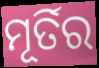
ମୂର୍ତିର